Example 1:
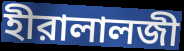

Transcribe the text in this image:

হীরালালজী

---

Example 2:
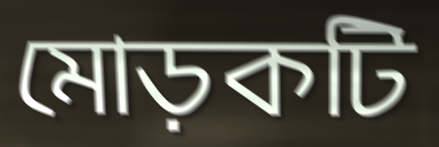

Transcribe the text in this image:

মোড়কটি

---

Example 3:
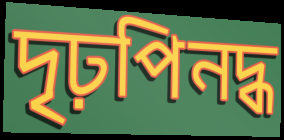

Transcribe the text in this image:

দৃঢ়পিনদ্ধ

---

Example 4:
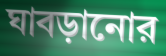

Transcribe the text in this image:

ঘাবড়ানোর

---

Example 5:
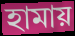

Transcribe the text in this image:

হামায়